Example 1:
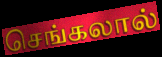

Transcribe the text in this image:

செங்கலால்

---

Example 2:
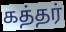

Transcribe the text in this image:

கத்தர்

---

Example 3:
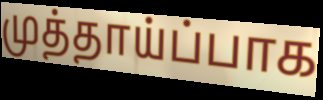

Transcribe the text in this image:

முத்தாய்ப்பாக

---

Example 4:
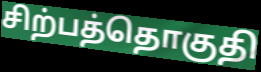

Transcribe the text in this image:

சிற்பத்தொகுதி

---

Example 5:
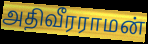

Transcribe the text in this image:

அதிவீரராமன்